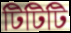
টিটিটি